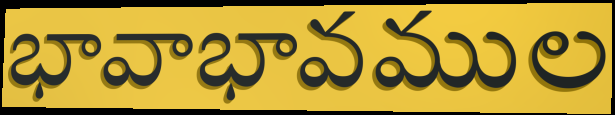
భావాభావముల